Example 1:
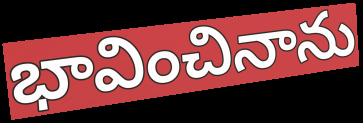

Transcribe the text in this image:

భావించినాను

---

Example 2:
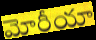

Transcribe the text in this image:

మోరీయా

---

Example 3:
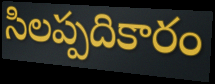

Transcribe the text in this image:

సిలప్పదికారం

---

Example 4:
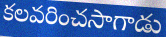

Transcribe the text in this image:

కలవరించసాగాడు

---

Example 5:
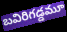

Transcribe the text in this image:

బవిరిగడ్డమూ